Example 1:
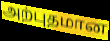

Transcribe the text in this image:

அற்புதமான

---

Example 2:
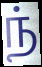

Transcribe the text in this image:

ந்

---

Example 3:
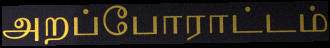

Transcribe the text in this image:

அறப்போராட்டம்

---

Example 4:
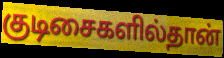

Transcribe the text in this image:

குடிசைகளில்தான்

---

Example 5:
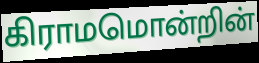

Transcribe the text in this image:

கிராமமொன்றின்